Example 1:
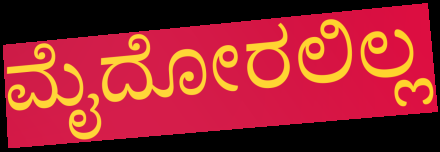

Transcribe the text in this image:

ಮೈದೋರಲಿಲ್ಲ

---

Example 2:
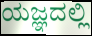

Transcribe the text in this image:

ಯಜ್ಞದಲ್ಲಿ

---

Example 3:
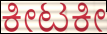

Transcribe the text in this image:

ಕೀಟಕೀ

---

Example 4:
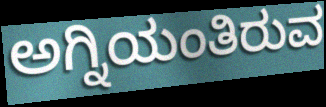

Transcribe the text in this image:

ಅಗ್ನಿಯಂತಿರುವ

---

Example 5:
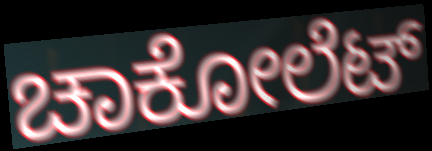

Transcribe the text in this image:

ಚಾಕೋಲೆಟ್